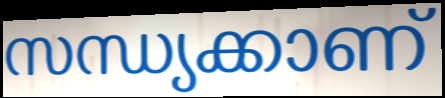
സന്ധ്യക്കാണ്